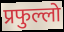
प्रफुल्लो